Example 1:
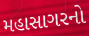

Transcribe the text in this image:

મહાસાગરનો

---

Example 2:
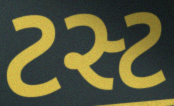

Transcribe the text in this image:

ટસ્ટ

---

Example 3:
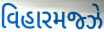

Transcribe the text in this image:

વિહારમજ્ઝે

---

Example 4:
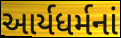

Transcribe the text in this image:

આર્યધર્મનાં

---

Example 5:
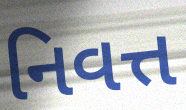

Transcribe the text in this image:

નિવત્ત